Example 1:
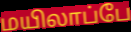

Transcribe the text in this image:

மயிலாப்பே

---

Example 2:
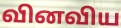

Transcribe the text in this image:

வினவிய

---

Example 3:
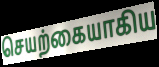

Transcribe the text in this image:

செயற்கையாகிய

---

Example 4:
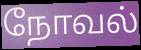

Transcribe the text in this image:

நோவல்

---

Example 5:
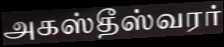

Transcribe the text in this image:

அகஸ்தீஸ்வரர்